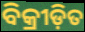
ବିକ୍ରୀଡ଼ିତ